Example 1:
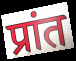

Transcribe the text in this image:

प्रांत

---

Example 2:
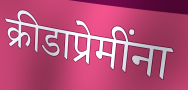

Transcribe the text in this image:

क्रीडाप्रेमींना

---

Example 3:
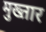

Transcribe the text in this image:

मुख्तार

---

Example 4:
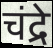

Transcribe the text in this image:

चंद्रे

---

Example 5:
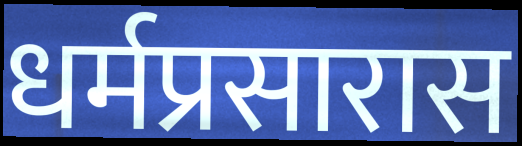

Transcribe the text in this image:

धर्मप्रसारास